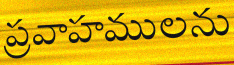
ప్రవాహములను